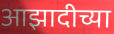
आझादीच्या